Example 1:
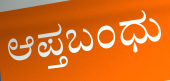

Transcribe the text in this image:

ಆಪ್ತಬಂಧು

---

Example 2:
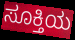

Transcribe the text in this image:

ಸೂಕ್ತಿಯ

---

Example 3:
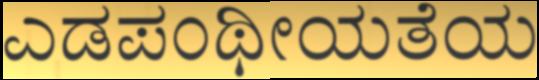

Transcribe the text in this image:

ಎಡಪಂಥೀಯತೆಯ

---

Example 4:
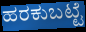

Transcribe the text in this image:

ಹರಕುಬಟ್ಟೆ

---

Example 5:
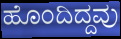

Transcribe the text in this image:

ಹೊಂದಿದ್ದವು